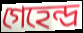
গেহেন্দ্র